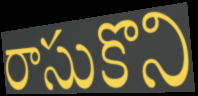
రాసుకొని